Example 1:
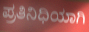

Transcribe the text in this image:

ಪ್ರತಿನಿಧಿಯಾಗಿ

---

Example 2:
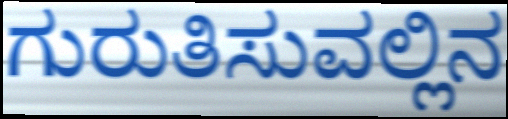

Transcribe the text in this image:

ಗುರುತಿಸುವಲ್ಲಿನ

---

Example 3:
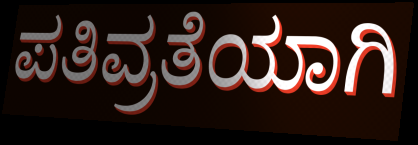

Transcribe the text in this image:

ಪತಿವ್ರತೆಯಾಗಿ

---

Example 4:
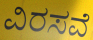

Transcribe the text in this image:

ವಿರಸವೆ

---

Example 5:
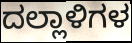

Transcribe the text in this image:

ದಲ್ಲಾಳಿಗಳ